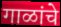
गाळांचे